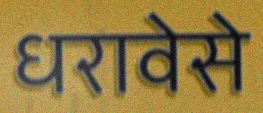
धरावेसे